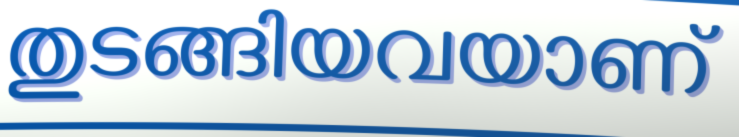
തുടങ്ങിയവയാണ്